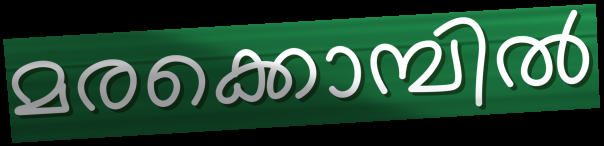
മരക്കൊമ്പിൽ